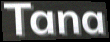
Tana